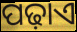
ପଢ଼ାଏ